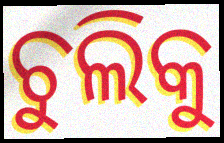
ଚୁଲିକୁ